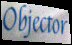
Objector